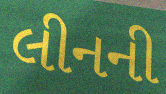
લીનની